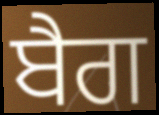
ਬੈਗ